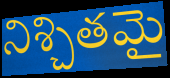
నిశ్చితమై